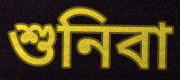
শুনিবা